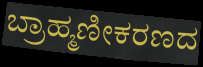
ಬ್ರಾಹ್ಮಣೀಕರಣದ